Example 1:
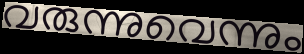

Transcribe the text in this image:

വരുന്നുവെന്നും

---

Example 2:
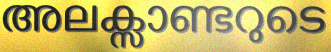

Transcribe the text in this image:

അലക്സാണ്ടറുടെ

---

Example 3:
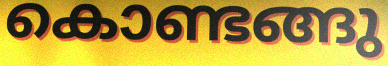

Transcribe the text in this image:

കൊണ്ടങ്ങു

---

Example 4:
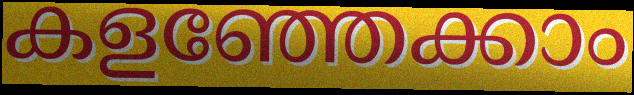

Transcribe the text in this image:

കളഞ്ഞേക്കാം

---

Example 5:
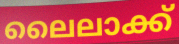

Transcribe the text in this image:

ലൈലാക്ക്